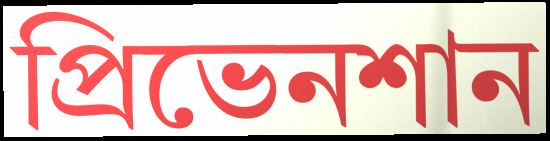
প্রিভেনশান